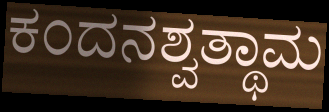
ಕಂದನಶ್ವತ್ಥಾಮ